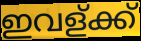
ഇവള്ക്ക്